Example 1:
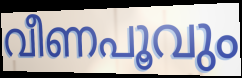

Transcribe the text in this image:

വീണപൂവും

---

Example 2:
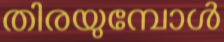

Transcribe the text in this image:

തിരയുമ്പോൾ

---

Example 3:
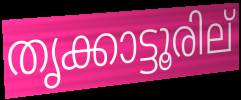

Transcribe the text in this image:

തൃക്കാട്ടൂരില്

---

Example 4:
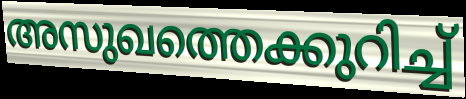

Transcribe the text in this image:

അസുഖത്തെക്കുറിച്ച്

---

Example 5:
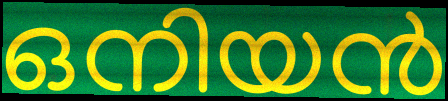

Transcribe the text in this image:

ഒനിയൻ